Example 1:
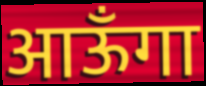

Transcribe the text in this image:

आऊँगा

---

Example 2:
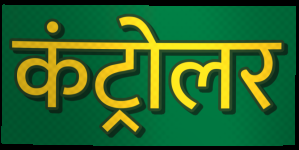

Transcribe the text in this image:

कंट्रोलर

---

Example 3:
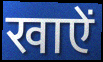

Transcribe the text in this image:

खाऐं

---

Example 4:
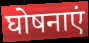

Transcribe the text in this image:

घोषनाएं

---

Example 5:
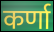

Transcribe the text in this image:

कर्णा